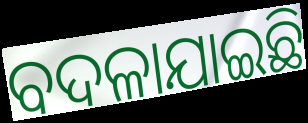
ବଦଳାଯାଇଛି